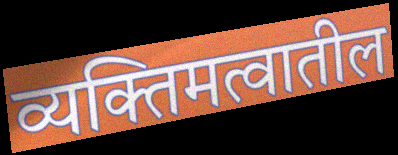
व्यक्तिमत्वातील